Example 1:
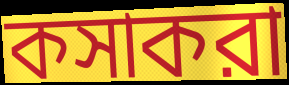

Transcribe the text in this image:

কসাকরা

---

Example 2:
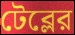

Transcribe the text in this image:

টেব্লের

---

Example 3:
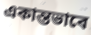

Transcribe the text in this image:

একান্তভাবে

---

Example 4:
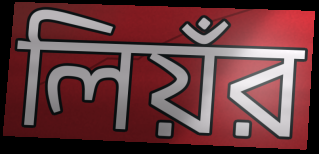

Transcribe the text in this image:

লিয়ঁর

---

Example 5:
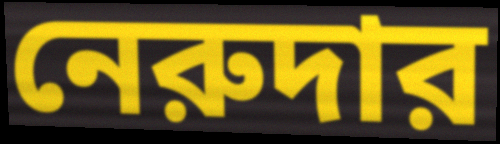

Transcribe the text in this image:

নেরুদার